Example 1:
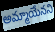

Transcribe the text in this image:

అమ్మాయేనని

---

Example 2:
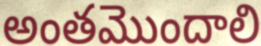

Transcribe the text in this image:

అంతమొందాలి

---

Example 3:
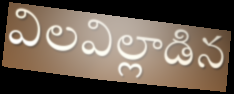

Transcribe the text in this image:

విలవిల్లాడిన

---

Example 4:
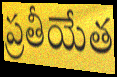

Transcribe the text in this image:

ప్రతీయేత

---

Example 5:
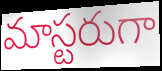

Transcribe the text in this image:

మాస్టరుగా